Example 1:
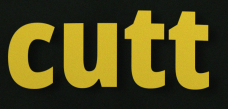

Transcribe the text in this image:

cutt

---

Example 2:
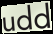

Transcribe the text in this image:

udd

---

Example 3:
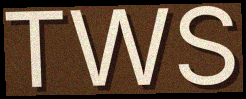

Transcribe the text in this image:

TWS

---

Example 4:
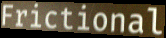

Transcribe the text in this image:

Frictional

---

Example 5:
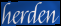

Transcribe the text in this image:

herden